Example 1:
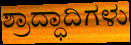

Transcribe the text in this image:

ಶ್ರಾದ್ಧಾದಿಗಳು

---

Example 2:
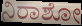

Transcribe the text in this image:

ನಿರಾಶೋ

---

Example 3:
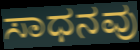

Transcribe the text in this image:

ಸಾಧನವು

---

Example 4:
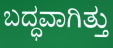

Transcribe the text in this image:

ಬದ್ಧವಾಗಿತ್ತು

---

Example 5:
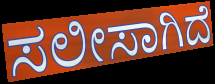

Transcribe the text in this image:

ಸಲೀಸಾಗಿದೆ